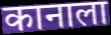
कानाला